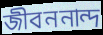
জীবননান্দ